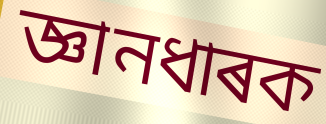
জ্ঞানধাৰক